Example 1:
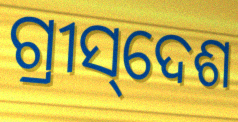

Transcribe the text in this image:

ଗ୍ରୀସ୍‌ଦେଶ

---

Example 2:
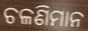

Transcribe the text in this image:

ଚଳଣିମାନ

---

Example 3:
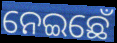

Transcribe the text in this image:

ନେଇଛେଁ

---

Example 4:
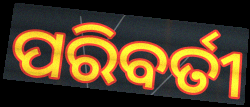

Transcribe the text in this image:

ପରିବର୍ତୀ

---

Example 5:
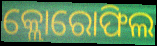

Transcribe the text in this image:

କ୍ଲୋରୋଫିଲ